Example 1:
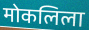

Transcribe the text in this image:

मोकलिला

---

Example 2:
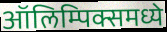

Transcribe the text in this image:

ऑलिम्पिक्समध्ये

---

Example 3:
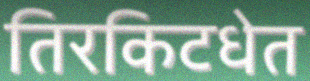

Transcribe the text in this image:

तिरकिटधेत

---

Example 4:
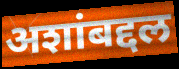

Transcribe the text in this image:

अशांबद्दल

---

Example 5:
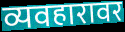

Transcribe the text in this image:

व्यवहारावर